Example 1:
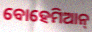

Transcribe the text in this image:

ବୋହେମିଆନ୍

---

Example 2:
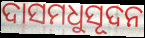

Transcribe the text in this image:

ଦାସମଧୁସୂଦନ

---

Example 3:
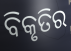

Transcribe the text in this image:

ବିକୃତିର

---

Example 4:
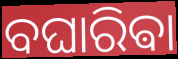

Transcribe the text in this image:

ବଘାରିଵା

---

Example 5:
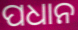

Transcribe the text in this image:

ପଧାନ